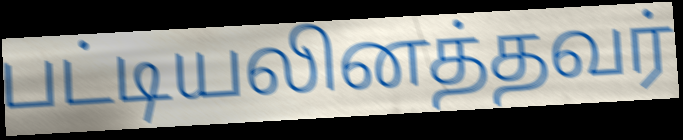
பட்டியலினத்தவர்